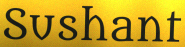
Sushant